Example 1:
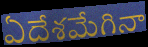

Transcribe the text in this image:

ఏదేశమేగినా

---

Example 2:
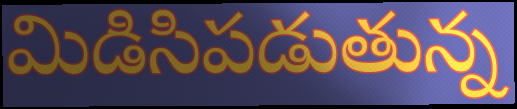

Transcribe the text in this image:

మిడిసిపడుతున్న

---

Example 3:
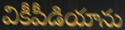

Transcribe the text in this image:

వికీపీడియాను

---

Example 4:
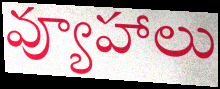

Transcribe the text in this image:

వ్యూహాలు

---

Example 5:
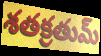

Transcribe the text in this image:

శతక్రతుమ్